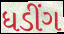
ધડીંગ